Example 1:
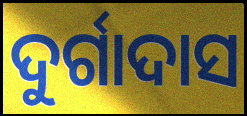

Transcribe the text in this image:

ଦୁର୍ଗାଦାସ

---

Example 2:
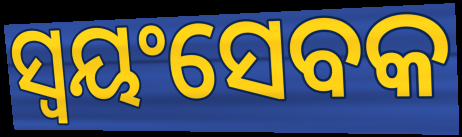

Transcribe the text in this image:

ସ୍ୱୟଂସେବକ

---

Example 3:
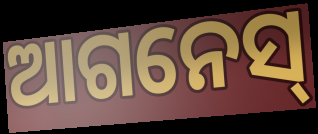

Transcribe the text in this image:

ଆଗନେସ୍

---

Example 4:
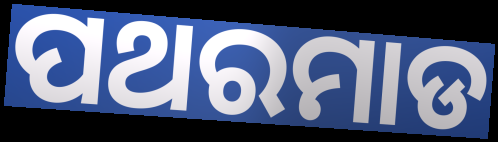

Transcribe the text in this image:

ପଥରମାଡ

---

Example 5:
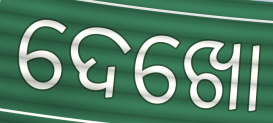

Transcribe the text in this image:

ଦେଖୋ